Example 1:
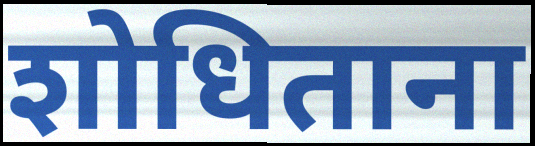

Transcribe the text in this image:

शोधिताना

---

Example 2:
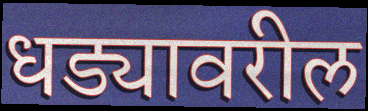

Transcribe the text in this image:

धड्यावरील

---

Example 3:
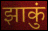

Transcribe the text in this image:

झाकुं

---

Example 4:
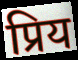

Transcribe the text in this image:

प्रिय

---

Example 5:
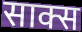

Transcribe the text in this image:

साक्स